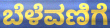
ಬೆಳೆವಣಿಗೆ